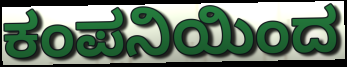
ಕಂಪನಿಯಿಂದ